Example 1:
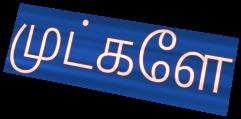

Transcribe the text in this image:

முட்களே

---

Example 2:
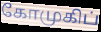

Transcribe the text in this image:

கோமுகிப்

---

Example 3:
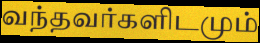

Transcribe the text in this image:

வந்தவர்களிடமும்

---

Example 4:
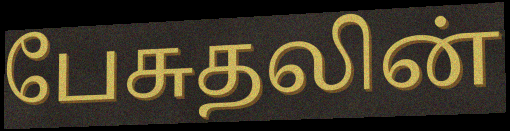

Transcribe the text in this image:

பேசுதலின்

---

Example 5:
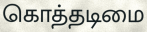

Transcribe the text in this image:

கொத்தடிமை